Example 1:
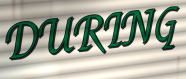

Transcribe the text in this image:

DURING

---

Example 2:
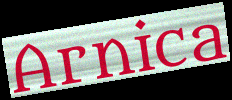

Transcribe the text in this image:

Arnica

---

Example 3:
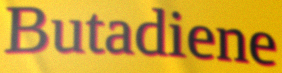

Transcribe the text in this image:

Butadiene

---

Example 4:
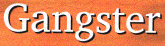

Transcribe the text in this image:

Gangster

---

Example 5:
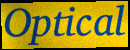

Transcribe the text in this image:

Optical